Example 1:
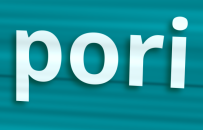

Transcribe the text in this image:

pori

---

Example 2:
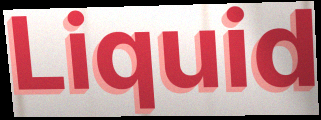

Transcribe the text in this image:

Liquid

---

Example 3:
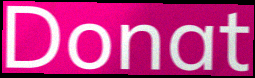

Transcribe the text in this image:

Donat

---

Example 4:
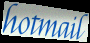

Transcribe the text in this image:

hotmail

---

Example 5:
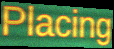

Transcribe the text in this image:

Placing